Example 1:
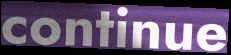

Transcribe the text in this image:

continue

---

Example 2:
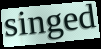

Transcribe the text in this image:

singed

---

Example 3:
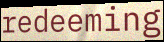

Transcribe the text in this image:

redeeming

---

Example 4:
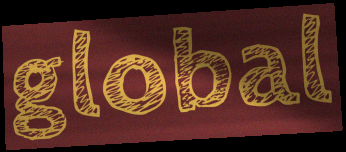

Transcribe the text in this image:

global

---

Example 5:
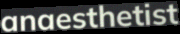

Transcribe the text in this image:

anaesthetist